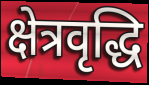
क्षेत्रवृद्धि